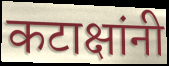
कटाक्षांनी